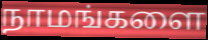
நாமங்களை